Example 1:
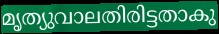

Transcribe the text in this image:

മൃത്യുവാലതിരിട്ടതാകു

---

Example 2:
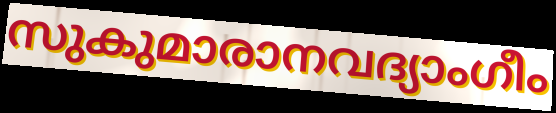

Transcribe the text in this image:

സുകുമാരാനവദ്യാംഗീം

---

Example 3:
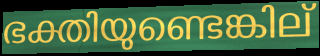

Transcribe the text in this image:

ഭക്തിയുണ്ടെങ്കില്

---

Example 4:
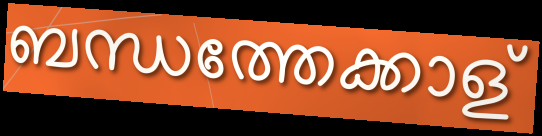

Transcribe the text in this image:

ബന്ധത്തേക്കാള്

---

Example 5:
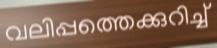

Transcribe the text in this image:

വലിപ്പത്തെക്കുറിച്ച്